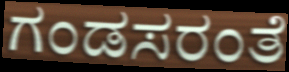
ಗಂಡಸರಂತೆ